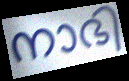
നാഭി